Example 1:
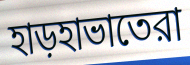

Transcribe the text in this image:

হাড়হাভাতেরা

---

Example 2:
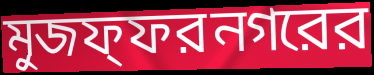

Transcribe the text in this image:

মুজফ্ফরনগরের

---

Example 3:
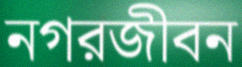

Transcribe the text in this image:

নগরজীবন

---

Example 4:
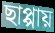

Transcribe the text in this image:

ছাপ্পায়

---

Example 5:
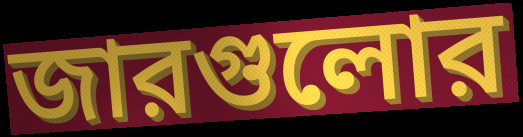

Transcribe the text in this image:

জারগুলোর